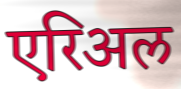
एरिअल